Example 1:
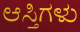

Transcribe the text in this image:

ಆಸ್ತಿಗಳು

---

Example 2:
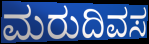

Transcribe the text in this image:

ಮರುದಿವಸ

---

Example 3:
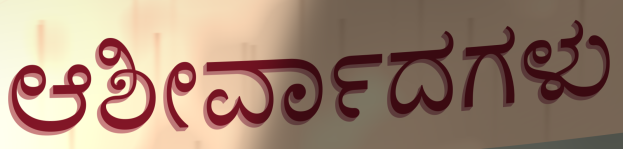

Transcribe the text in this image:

ಆಶೀರ್ವಾದಗಳು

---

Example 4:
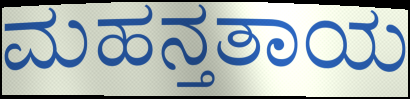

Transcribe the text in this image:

ಮಹನ್ತತಾಯ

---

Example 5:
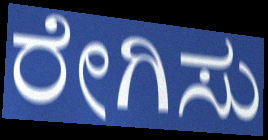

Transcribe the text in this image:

ರೇಗಿಸು